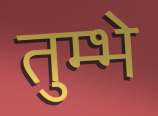
तुम्भे